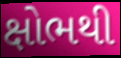
ક્ષોભથી